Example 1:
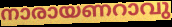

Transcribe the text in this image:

നാരായണറാവു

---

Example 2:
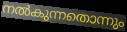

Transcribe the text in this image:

നൽകുന്നതൊന്നും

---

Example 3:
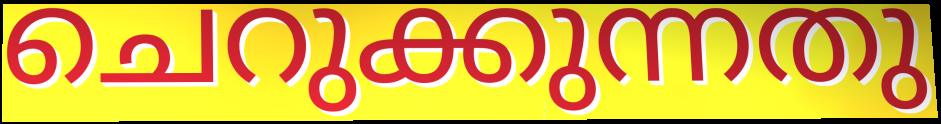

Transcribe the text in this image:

ചെറുക്കുന്നതു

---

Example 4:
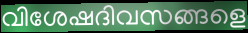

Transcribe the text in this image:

വിശേഷദിവസങ്ങളെ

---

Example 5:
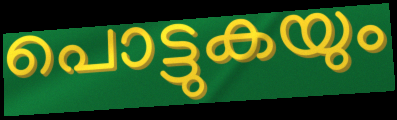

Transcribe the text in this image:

പൊട്ടുകയും